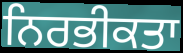
ਨਿਰਭੀਕਤਾ